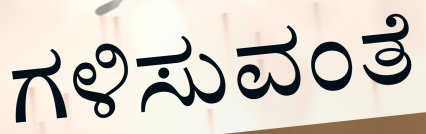
ಗಳಿಸುವಂತೆ